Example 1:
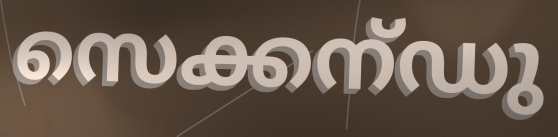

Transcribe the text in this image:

സെക്കന്ഡു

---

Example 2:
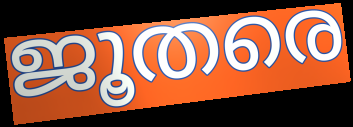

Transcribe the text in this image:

ജൂതരെ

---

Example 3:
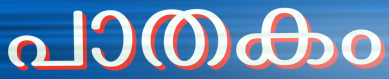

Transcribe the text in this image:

പാതകം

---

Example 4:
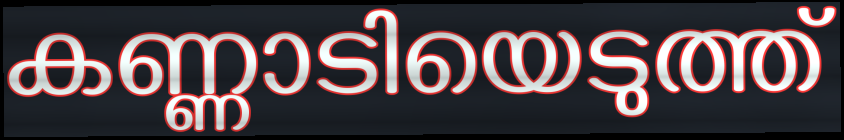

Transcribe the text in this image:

കണ്ണാടിയെടുത്ത്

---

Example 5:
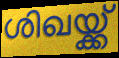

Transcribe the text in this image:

ശിഖയ്ക്ക്